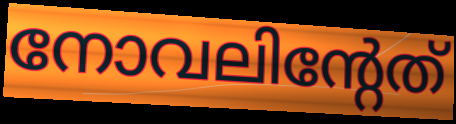
നോവലിന്റേത്